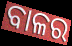
ବାଳର